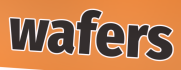
wafers